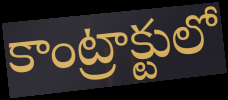
కాంట్రాక్టులో